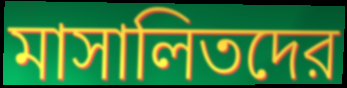
মাসালিতদের